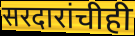
सरदारांचीही